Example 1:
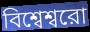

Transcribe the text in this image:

বিশ্বেশ্বরো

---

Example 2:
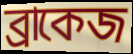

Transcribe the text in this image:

ব্রাকেজ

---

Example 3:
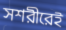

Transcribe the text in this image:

সশরীরেই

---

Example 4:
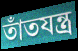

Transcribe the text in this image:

তাঁতযন্ত্র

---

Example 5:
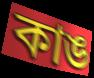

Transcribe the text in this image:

কাঙ